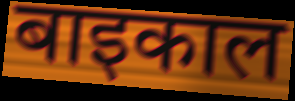
बाइकाल